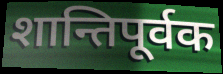
शान्तिपूर्वक